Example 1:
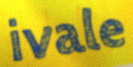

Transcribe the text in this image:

ivale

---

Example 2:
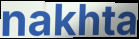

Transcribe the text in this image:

nakhta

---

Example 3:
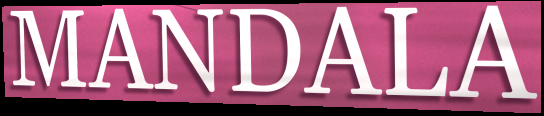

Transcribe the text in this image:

MANDALA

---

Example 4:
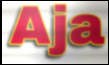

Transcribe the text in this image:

Aja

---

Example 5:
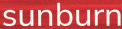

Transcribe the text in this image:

sunburn